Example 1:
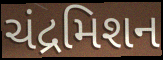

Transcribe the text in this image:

ચંદ્રમિશન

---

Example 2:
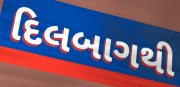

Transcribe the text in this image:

દિલબાગથી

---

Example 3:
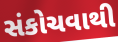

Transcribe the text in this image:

સંકોચવાથી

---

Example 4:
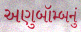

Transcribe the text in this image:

અણુબૉમ્બનું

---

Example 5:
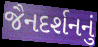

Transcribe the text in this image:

જૈનદર્શનનું